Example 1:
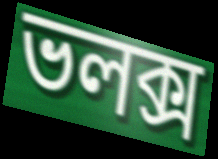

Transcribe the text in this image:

ভলক্স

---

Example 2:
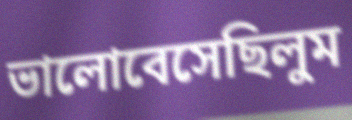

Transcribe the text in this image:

ভালোবেসেছিলুম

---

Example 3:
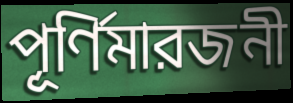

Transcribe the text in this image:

পূর্ণিমারজনী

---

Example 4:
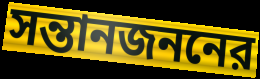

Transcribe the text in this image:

সন্তানজননের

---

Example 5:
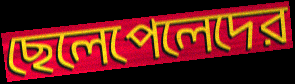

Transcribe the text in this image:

ছেলেপেলেদের